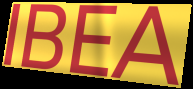
IBEA